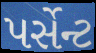
પર્સેન્ટ